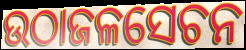
ଉଠାଜଳସେଚନ